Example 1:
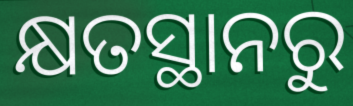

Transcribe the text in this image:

କ୍ଷତସ୍ଥାନରୁ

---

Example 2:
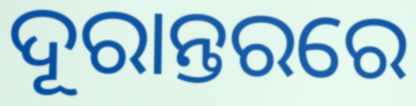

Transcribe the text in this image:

ଦୂରାନ୍ତରରେ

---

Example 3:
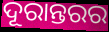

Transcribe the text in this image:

ଦୂରାନ୍ତରର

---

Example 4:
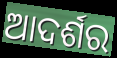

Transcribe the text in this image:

ଆଦର୍ଶର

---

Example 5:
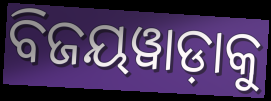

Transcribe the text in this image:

ବିଜୟୱାଡ଼ାକୁ